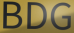
BDG